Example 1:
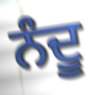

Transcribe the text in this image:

ਨੰਦੂ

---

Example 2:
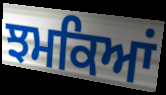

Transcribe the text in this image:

ਝਮਕਿਆਂ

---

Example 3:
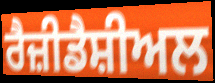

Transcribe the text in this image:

ਰੈਜ਼ੀਡੈਸ਼ੀਅਲ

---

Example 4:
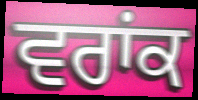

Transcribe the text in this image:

ਵਰਾਂਕ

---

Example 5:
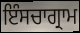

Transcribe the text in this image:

ਇੰਸਚਾਗ੍ਰਾਮ